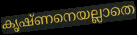
കൃഷ്ണനെയല്ലാതെ